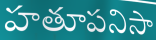
హతూపనిసా